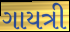
ગાયત્રી